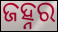
ଜହ୍ନର